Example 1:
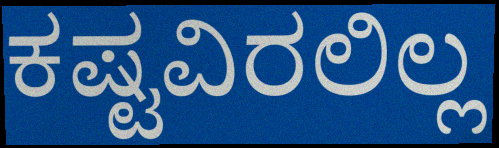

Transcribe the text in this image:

ಕಷ್ಟವಿರಲಿಲ್ಲ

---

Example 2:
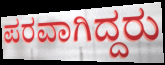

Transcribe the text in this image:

ಪರವಾಗಿದ್ದರು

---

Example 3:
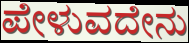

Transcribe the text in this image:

ಪೇಳುವದೇನು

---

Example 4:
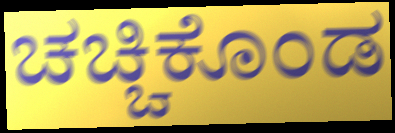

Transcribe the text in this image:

ಚಚ್ಚಿಕೊಂಡ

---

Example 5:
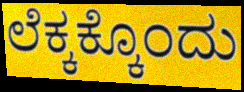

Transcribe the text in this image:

ಲೆಕ್ಕಕ್ಕೊಂದು